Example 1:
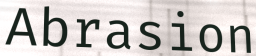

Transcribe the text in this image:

Abrasion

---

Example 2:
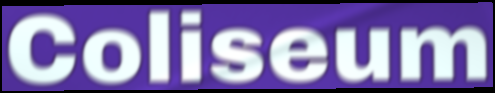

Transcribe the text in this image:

Coliseum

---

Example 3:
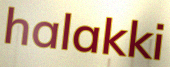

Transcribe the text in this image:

halakki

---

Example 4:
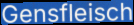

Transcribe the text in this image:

Gensfleisch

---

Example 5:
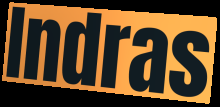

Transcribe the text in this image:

Indras